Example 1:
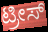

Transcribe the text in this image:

ಟ್ರೀಸ್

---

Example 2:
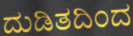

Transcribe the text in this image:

ದುಡಿತದಿಂದ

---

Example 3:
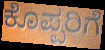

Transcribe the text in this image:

ಕೊಪ್ಪರಿಗೆ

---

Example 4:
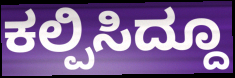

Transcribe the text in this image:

ಕಲ್ಪಿಸಿದ್ದೂ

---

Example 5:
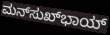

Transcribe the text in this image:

ಮನ್‌ಸುಖ್‌ಭಾಯ್